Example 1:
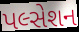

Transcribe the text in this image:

પલ્સેશન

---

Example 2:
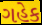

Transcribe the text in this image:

ગહેક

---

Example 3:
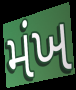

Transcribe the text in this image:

મંખ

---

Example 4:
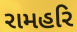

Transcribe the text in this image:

રામહરિ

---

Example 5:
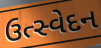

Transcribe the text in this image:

ઉત્સ્વેદન